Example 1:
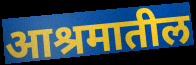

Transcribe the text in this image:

आश्रमातील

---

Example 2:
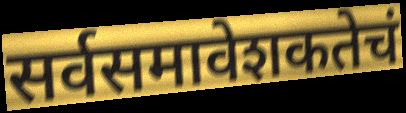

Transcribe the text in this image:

सर्वसमावेशकतेचं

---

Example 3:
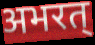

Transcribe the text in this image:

अभरत्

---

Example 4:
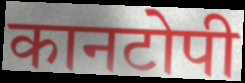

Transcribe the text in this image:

कानटोपी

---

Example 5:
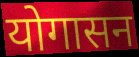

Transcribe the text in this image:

योगासन